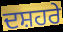
ਦਸ਼ਹਰੇ